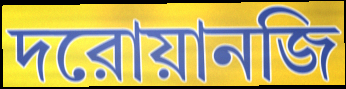
দরোয়ানজি